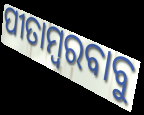
ପୀତାମ୍ବରବାବୁ